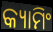
କ୍ୟାମିଂ